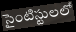
సైంటిస్టులలో